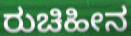
ರುಚಿಹೀನ